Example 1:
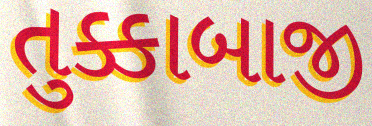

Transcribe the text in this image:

તુક્કાબાજી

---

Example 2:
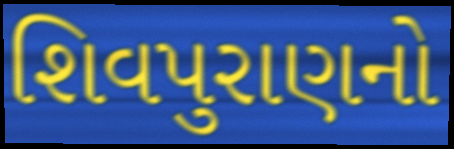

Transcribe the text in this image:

શિવપુરાણનો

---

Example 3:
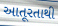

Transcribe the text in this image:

આતૂરતાથી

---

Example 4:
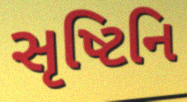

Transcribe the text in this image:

સૃષ્ટિનિ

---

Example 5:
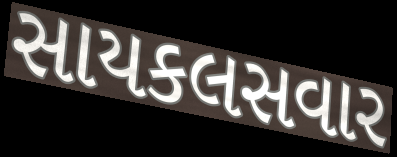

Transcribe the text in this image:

સાયકલસવાર